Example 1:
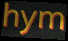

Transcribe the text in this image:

hym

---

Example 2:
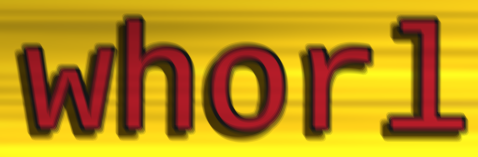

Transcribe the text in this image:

whorl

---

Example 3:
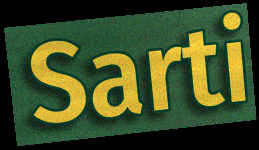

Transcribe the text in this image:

Sarti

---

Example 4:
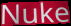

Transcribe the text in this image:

Nuke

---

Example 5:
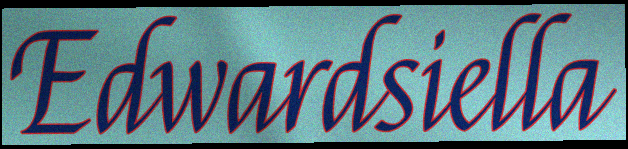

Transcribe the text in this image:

Edwardsiella